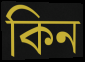
কিন